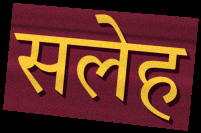
सलेह